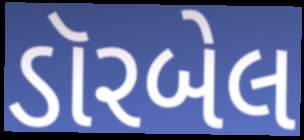
ડૉરબેલ